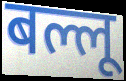
बल्लू